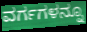
ವರ್ಗಗಳನ್ನೂ